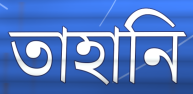
তাহানি